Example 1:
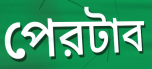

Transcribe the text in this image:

পেরটাব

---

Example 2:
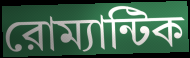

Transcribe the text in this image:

রোম্যান্টিক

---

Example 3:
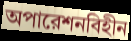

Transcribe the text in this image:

অপারেশনবিহীন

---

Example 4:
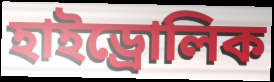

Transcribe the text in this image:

হাইড্রোলিক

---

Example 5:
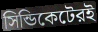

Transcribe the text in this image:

সিন্ডিকেটেরই